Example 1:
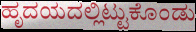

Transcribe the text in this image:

ಹೃದಯದಲ್ಲಿಟ್ಟುಕೊಂಡು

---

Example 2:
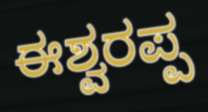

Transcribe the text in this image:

ಈಶ್ವರಪ್ಪ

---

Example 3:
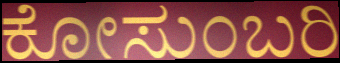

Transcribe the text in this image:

ಕೋಸುಂಬರಿ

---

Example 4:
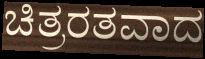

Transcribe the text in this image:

ಚಿತ್ರರತವಾದ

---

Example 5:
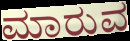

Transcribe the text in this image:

ಮಾರುವ